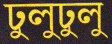
ঢুলুঢুলু